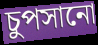
চুপসানো